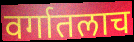
वर्गातलाच